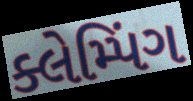
ક્લેમ્પિંગ